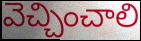
వెచ్చించాలి